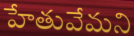
హేతువేమని